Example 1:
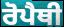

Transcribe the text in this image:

ਰੋਪੈਥੀ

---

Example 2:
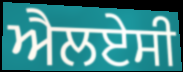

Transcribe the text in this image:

ਐਲਏਸੀ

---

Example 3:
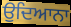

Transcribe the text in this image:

ਉਦਿਆਨਾ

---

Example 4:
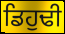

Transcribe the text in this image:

ਡਿਹੁਢੀ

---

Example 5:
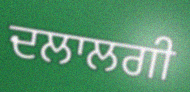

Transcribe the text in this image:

ਦਲਾਲਗੀ